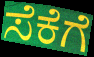
ಸೆಕೆಗೆ